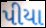
પીયા